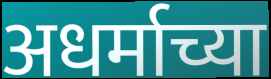
अधर्माच्या